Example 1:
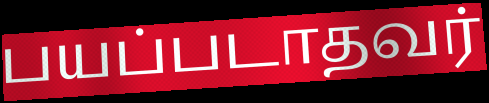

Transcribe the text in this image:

பயப்படாதவர்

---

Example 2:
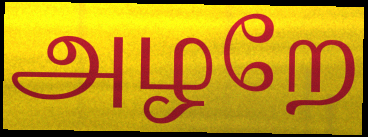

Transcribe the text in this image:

அழறே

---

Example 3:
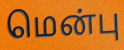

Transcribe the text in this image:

மென்பு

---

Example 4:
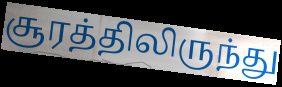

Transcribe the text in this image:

சூரத்திலிருந்து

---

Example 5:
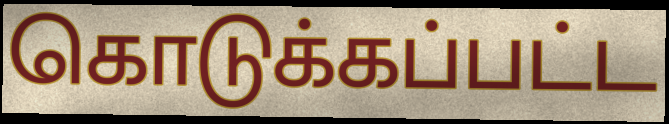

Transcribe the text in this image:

கொடுக்கப்பட்ட